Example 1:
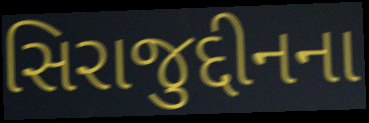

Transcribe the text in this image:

સિરાજુદ્દીનના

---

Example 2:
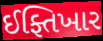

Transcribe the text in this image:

ઈફ્તિખાર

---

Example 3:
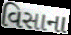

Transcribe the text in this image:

વિસાના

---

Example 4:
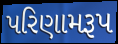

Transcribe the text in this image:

પરિણામરૂપ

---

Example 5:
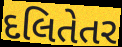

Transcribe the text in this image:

દલિતેતર